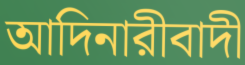
আদিনারীবাদী